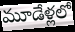
మూడేళ్లలో